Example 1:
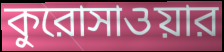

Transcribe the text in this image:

কুরোসাওয়ার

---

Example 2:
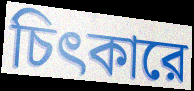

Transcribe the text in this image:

চিৎকারে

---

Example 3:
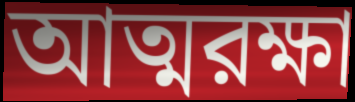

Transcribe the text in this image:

আত্মরক্ষা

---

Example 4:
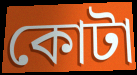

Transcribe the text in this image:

কোটা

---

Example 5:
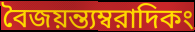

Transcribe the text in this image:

বৈজয়ন্ত্যম্বরাদিকং